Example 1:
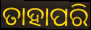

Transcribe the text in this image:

ତାହାପରି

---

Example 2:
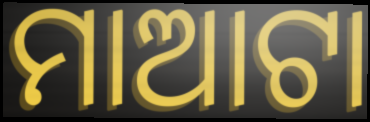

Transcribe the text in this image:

ମାଆଟା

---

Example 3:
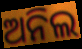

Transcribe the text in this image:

ଅନିଲ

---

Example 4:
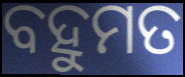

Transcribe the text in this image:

ବହୁମତ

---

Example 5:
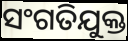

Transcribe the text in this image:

ସଂଗତିଯୁକ୍ତ